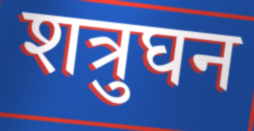
शत्रुघन